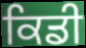
ਕਿਡੀ